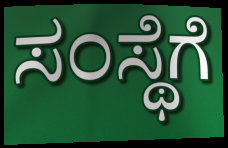
ಸಂಸ್ಥೆಗೆ